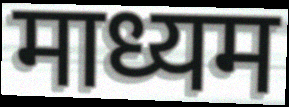
माध्यम